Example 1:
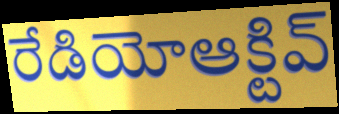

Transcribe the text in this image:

రేడియోఆక్టివ్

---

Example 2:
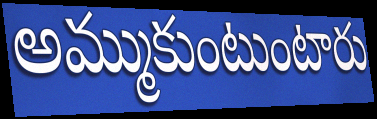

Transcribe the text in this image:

అమ్ముకుంటుంటారు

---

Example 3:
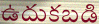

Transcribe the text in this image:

ఉదుకబడి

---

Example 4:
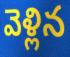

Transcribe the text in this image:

వెళ్లిన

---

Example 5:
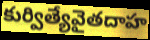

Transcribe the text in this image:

కుర్విత్యేవైతదాహ